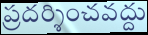
ప్రదర్శించవద్దు